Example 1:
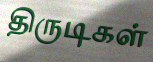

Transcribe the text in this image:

திருடிகள்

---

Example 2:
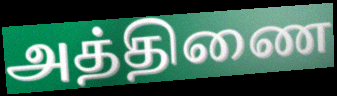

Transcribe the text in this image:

அத்திணை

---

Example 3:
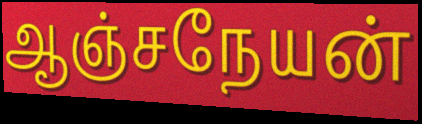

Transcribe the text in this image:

ஆஞ்சநேயன்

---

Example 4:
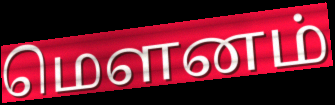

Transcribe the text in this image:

மௌனம்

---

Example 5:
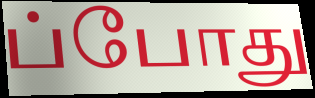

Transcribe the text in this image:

ப்போது